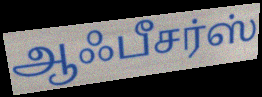
ஆஃபீசர்ஸ்